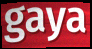
gaya